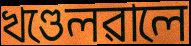
খণ্ডেলৱালে